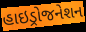
હાઇડ્રોજનેશન